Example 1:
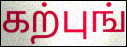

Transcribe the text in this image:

கற்புங்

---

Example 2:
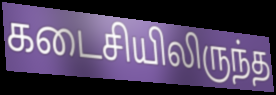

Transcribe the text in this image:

கடைசியிலிருந்த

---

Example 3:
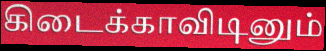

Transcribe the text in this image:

கிடைக்காவிடினும்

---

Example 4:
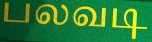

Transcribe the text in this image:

பலவடி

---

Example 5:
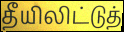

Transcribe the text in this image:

தீயிலிட்டுத்